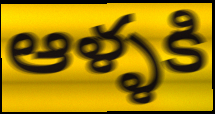
ఆళ్ళకి